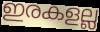
ഇരകളല്ല